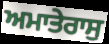
ਅਮਾਤੇਰਾਸੁ